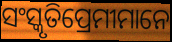
ସଂସ୍କୃତିପ୍ରେମୀମାନେ